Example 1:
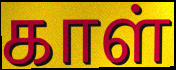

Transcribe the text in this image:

காள்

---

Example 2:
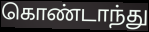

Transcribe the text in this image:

கொண்டாந்து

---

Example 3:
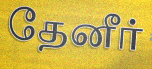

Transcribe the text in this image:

தேனீர்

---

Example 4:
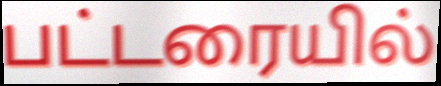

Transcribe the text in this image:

பட்டரையில்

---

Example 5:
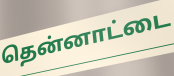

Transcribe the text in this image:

தென்னாட்டை